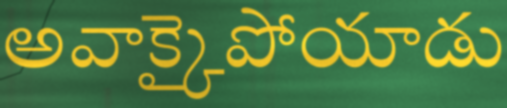
అవాక్కైపోయాడు